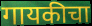
गायकीचा